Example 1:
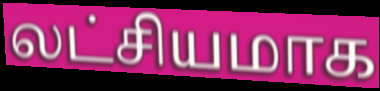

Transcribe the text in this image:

லட்சியமாக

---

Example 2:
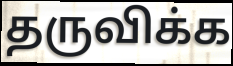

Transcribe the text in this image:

தருவிக்க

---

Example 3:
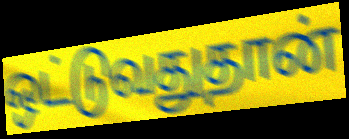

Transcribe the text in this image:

ஒட்டுவதுதான்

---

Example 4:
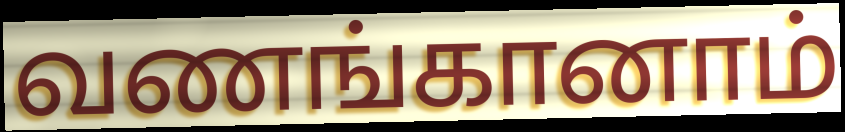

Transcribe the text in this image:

வணங்கானாம்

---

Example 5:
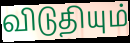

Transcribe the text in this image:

விடுதியும்